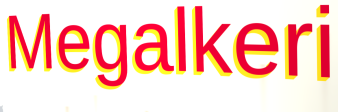
Megalkeri